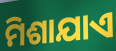
ମିଶାଯାଏ